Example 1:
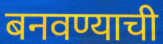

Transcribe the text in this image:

बनवण्याची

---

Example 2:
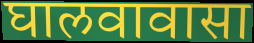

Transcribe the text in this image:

घालवावासा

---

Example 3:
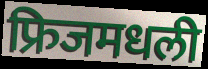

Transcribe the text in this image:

फ्रिजमधली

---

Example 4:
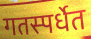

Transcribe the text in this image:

गतस्पर्धेत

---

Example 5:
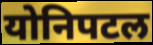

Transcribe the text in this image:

योनिपटल